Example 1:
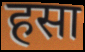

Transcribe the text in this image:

हसा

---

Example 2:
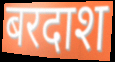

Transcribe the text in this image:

बरदाश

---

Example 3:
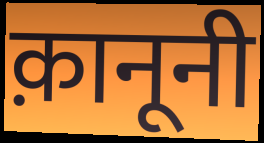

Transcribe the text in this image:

क़ानूनी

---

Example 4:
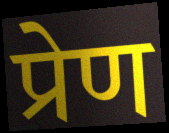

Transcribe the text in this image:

प्रेण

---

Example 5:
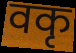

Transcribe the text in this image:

वकृ